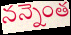
నన్నెంత